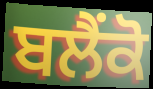
ਬਲੈਂਕੋ